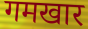
गमखार